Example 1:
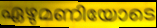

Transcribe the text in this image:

ഏഴുമണിയോടെ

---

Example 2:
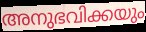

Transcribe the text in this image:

അനുഭവിക്കയും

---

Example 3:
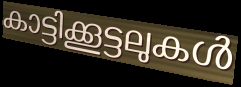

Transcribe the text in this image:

കാട്ടിക്കൂട്ടലുകൾ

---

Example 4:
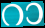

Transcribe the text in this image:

റാ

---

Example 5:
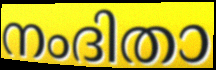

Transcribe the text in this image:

നംദിതാ